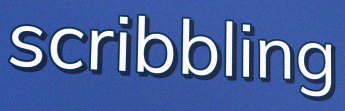
scribbling